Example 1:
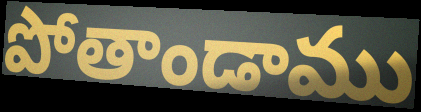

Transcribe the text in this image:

పోతాండాము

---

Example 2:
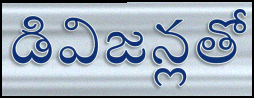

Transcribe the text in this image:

డివిజన్లతో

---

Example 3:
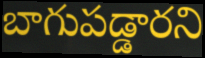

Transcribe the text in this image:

బాగుపడ్డారని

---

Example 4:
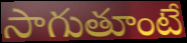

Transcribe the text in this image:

సాగుతూంటే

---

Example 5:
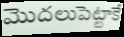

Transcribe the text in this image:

మొదలుపెట్టాకే